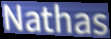
Nathas